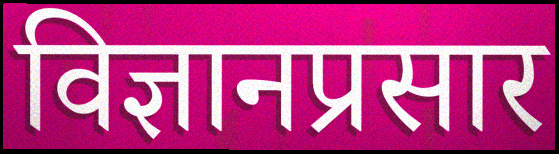
विज्ञानप्रसार